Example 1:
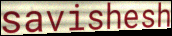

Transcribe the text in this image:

savishesh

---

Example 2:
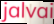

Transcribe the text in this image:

jalvai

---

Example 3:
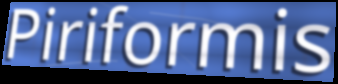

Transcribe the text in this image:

Piriformis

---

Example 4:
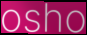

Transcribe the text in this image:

osho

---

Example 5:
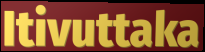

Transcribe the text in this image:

Itivuttaka